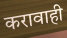
करावाही